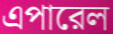
এপারেল